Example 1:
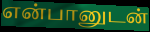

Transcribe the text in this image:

என்பானுடன்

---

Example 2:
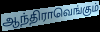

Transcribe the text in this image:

ஆந்திராவெங்கும்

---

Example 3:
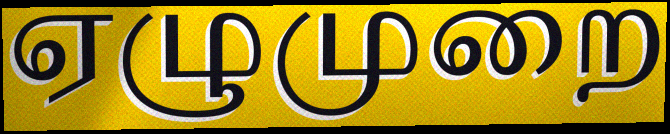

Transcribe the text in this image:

ஏழுமுறை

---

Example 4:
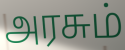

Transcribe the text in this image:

அரசும்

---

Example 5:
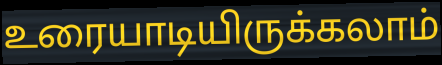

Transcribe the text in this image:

உரையாடியிருக்கலாம்